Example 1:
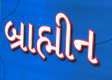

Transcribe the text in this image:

બ્રાહ્મીન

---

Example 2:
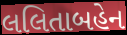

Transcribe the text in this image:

લલિતાબહેન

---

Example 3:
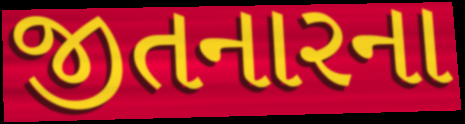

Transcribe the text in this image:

જીતનારના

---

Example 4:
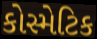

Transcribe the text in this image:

કોસ્મેટિક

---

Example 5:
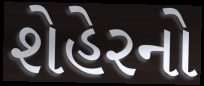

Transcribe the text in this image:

શેહેરનો